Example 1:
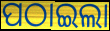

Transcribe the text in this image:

ପଠାଇଲା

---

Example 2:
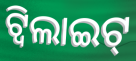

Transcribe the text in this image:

ଟ୍ୱିଲାଇଟ୍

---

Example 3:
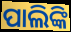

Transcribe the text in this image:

ପାଲିଙ୍କି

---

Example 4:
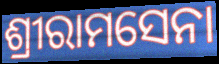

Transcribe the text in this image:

ଶ୍ରୀରାମସେନା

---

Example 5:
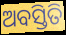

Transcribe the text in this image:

ଅବସ୍ତିତି